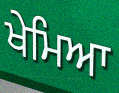
ਖੇਮਿਆ